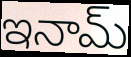
ఇనామ్